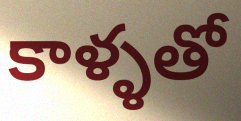
కాళ్ళతో